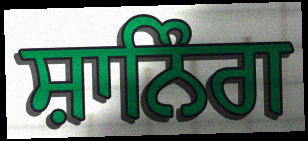
ਸ਼ਾਨਿੰਗ